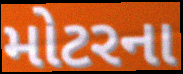
મોટરના